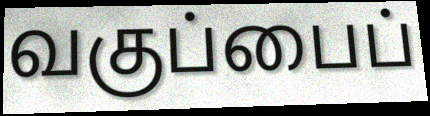
வகுப்பைப்